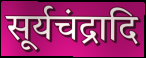
सूर्यचंद्रादि